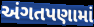
અંગતપણામાં